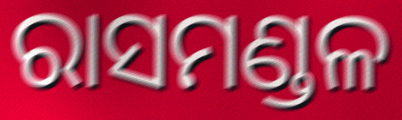
ରାସମଣ୍ଡଳ